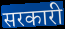
सरकारी